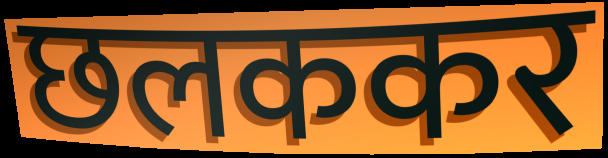
छलककर